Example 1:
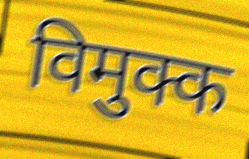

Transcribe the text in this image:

विमुक्क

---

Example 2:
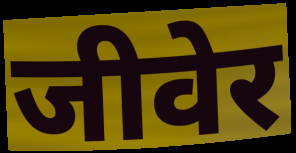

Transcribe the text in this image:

जीवेर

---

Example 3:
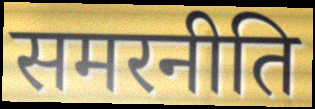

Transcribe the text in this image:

समरनीति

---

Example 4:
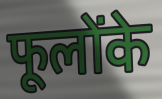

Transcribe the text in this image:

फूलोंके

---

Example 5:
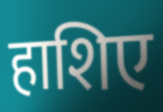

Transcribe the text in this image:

हाशिए